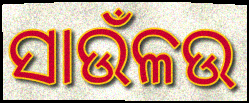
ସାଉଁଳଉ